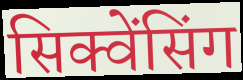
सिक्‍वेंसिंग